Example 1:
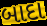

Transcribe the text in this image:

બાદા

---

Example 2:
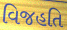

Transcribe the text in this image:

વિજહતિ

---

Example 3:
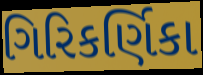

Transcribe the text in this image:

ગિરિકર્ણિકા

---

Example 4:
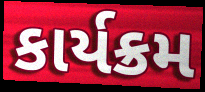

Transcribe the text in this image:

કાર્યક્રમ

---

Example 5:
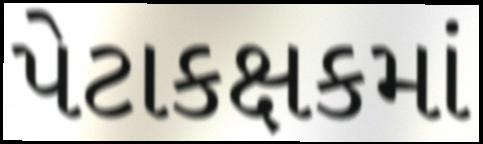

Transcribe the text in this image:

પેટાકક્ષકમાં